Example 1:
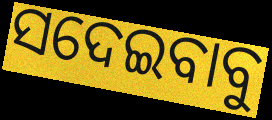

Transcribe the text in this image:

ସଦେଇବାବୁ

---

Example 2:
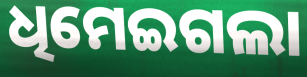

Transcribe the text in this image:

ଧିମେଇଗଲା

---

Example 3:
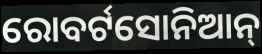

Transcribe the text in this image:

ରୋବର୍ଟସୋନିଆନ୍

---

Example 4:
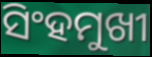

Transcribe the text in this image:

ସିଂହମୁଖୀ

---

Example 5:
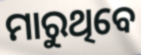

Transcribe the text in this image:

ମାରୁଥିବେ